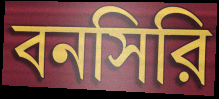
বনসিরি